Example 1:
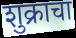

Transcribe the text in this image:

शुक्राचा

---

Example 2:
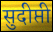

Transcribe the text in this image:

सुदीप्ती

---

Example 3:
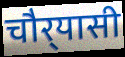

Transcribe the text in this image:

चौर्‍यासी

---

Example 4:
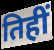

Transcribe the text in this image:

तिहीं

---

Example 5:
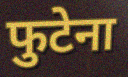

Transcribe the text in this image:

फुटेना